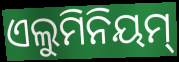
ଏଲୁମିନିୟମ୍